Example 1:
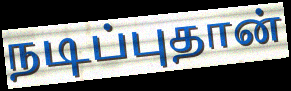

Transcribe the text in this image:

நடிப்புதான்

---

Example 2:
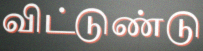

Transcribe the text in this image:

விட்டுண்டு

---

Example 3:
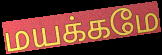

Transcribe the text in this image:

மயக்கமே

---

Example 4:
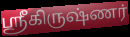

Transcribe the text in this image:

ஶ்ரீகிருஷ்ணர்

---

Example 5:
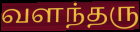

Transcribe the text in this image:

வளந்தரு